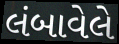
લંબાવેલે